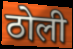
ठोली